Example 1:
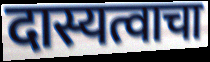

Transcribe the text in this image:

दास्यत्वाचा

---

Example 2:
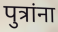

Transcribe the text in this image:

पुत्रांना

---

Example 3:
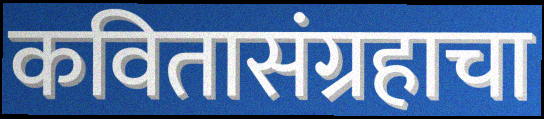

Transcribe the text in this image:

कवितासंग्रहाचा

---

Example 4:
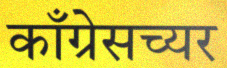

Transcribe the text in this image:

काँग्रेसच्यर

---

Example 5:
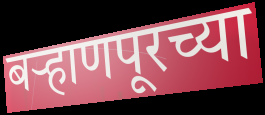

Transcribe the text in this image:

बऱ्हाणपूरच्या